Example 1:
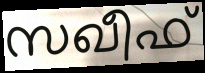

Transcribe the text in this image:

സഖീഫ്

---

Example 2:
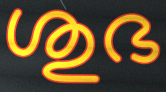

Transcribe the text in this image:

ശുഭ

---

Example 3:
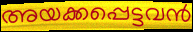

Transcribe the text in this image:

അയക്കപ്പെട്ടവൻ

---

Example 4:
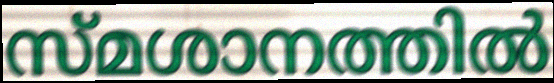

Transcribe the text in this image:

സ്മശാനത്തിൽ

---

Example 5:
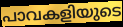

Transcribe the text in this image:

പാവകളിയുടെ